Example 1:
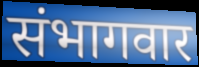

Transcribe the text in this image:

संभागवार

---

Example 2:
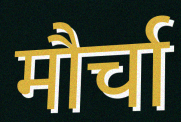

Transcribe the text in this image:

मौर्चा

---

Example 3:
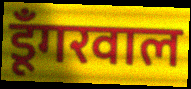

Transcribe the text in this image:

डूँगरवाल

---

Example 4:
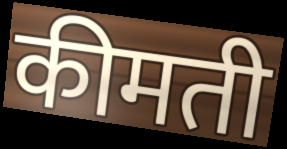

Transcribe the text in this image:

कीमती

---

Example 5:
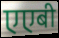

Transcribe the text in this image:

एएबी